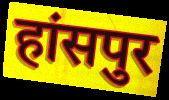
हांसपुर